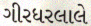
ગીરધરલાલે